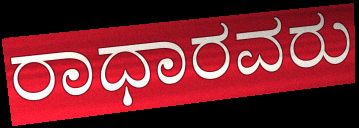
ರಾಧಾರವರು